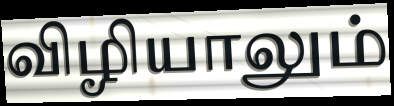
விழியாலும்